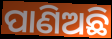
ପାଣିଅଛି